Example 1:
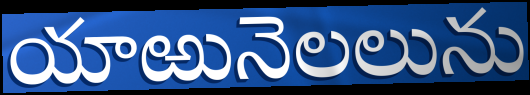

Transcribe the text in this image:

యాఱునెలలును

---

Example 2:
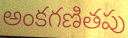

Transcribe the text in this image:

అంకగణితపు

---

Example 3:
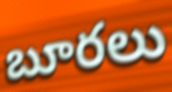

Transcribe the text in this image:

బూరలు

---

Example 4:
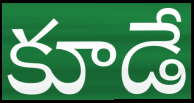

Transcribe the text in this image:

కూడే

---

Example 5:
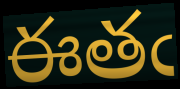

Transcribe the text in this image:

ఈతఁ